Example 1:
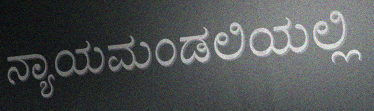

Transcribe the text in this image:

ನ್ಯಾಯಮಂಡಲಿಯಲ್ಲಿ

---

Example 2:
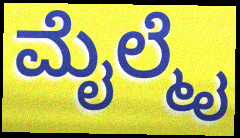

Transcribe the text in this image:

ಮೈಲ್ಮೈ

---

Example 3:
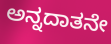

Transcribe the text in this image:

ಅನ್ನದಾತನೇ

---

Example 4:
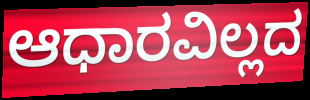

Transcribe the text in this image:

ಆಧಾರವಿಲ್ಲದ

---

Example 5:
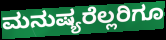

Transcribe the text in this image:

ಮನುಷ್ಯರೆಲ್ಲರಿಗೂ